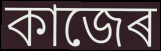
কাজেৰ